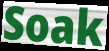
Soak